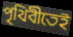
পৃথিবীতেই